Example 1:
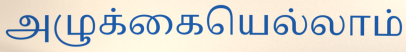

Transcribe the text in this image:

அழுக்கையெல்லாம்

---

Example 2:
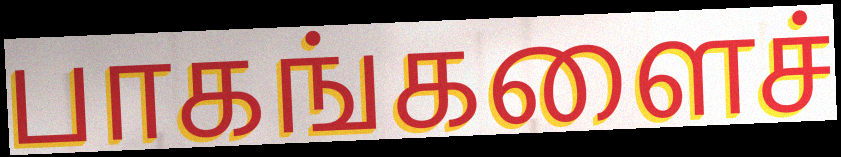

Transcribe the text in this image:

பாகங்களைச்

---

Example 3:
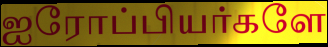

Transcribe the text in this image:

ஐரோப்பியர்களே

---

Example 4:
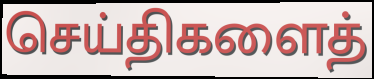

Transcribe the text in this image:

செய்திகளைத்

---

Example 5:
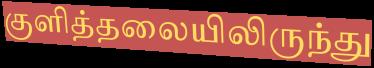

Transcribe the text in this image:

குளித்தலையிலிருந்து